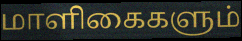
மாளிகைகளும்